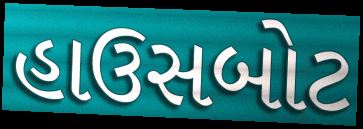
હાઉસબોટ